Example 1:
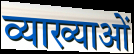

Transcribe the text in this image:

व्याख्याओं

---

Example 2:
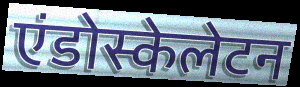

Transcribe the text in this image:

एंडोस्केलेटन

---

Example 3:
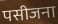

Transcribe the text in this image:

पसीजना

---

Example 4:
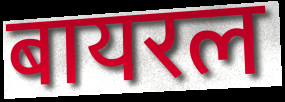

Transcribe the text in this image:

बायरल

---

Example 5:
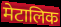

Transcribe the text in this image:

मेटालिक